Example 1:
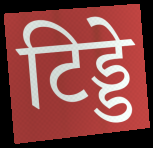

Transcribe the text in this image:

टिड्डे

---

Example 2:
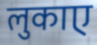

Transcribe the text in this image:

लुकाए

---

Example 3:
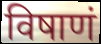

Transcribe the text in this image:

विषाणं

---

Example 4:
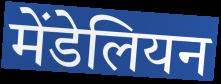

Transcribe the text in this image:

मेंडेलियन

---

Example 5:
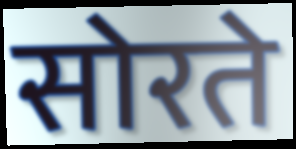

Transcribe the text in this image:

सोरते